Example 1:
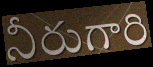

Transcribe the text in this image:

నీరుగారి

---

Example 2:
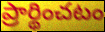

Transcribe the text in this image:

ప్రార్థించటం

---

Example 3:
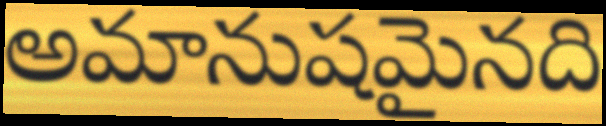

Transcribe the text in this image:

అమానుషమైనది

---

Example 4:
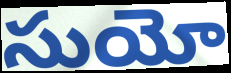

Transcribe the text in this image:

సుయో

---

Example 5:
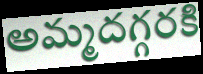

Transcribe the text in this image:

అమ్మదగ్గరకి